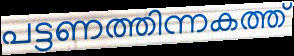
പട്ടണത്തിന്നകത്ത്